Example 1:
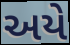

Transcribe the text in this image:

અયે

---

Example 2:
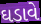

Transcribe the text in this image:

ઘડાવે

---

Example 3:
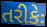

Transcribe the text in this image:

તરીકેઃ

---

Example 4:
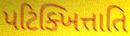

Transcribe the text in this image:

પટિક્ખિત્તાતિ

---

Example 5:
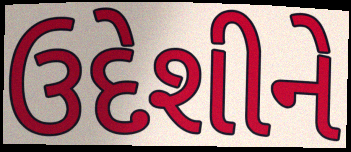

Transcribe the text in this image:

ઉદેશીને